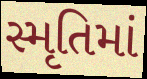
સ્મૃતિમાં